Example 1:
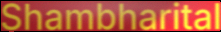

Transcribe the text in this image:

Shambharital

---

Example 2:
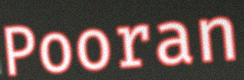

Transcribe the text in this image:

Pooran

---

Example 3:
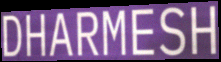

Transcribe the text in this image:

DHARMESH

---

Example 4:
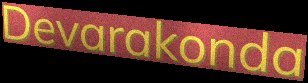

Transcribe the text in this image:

Devarakonda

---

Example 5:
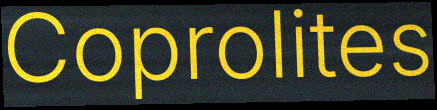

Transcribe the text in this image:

Coprolites